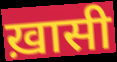
ख़ासी